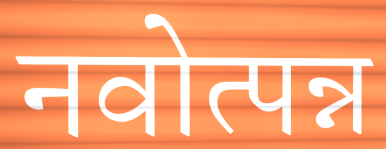
नवोत्पन्न